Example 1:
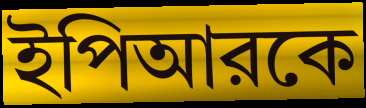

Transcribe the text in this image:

ইপিআরকে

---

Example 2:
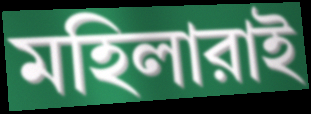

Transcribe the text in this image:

মহিলারাই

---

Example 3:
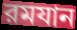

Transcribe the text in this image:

রমযান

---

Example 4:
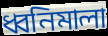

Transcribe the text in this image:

ধ্বনিমালা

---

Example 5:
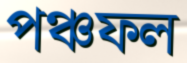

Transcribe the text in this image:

পঞ্চফল